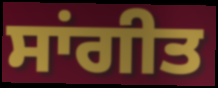
ਸਾਂਗੀਤ